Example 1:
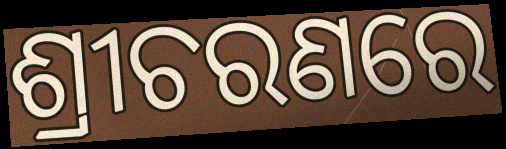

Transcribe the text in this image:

ଶ୍ରୀଚରଣରେ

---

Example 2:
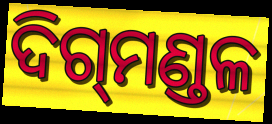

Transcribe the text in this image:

ଦିଗ୍‌ମଣ୍ଡଳ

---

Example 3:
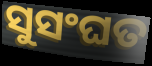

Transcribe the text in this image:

ସୁସଂଘତ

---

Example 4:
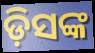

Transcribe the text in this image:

ଡ଼ିସଙ୍କ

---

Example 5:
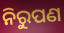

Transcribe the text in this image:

ନିରୁପଣ